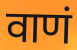
वाणं